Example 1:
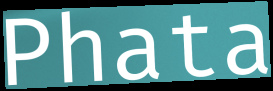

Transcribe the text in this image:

Phata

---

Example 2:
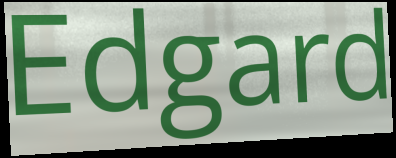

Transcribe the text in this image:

Edgard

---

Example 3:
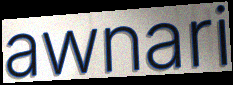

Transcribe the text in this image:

awnari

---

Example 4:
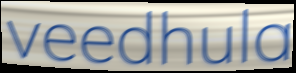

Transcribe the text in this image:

veedhula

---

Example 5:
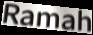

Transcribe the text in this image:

Ramah